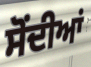
ਸੋਂਦੀਆਂ